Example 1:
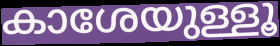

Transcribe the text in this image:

കാശേയുള്ളൂ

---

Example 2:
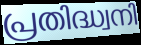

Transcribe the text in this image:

പ്രതിദ്ധ്വനി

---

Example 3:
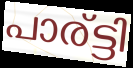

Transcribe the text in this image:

പാര്ട്ടി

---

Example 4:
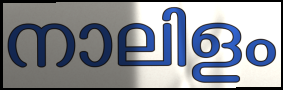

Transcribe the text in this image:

നാലിളം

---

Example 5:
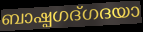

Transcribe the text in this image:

ബാഷ്പഗദ്ഗദയാ